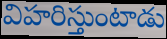
విహరిస్తుంటాడు